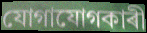
যোগাযোগকাৰী